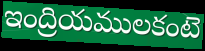
ఇంద్రియములకంటె